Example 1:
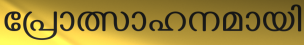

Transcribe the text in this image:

പ്രോത്സാഹനമായി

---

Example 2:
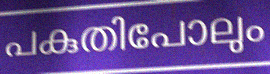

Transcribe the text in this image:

പകുതിപോലും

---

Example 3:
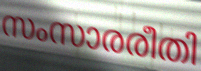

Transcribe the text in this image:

സംസാരരീതി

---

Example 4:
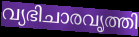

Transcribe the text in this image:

വ്യഭിചാരവൃത്തി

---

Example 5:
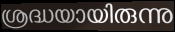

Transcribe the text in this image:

ശ്രദ്ധയായിരുന്നു